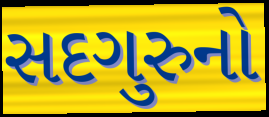
સદગુરુનો